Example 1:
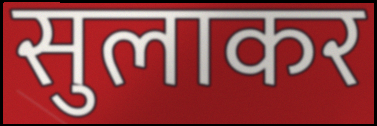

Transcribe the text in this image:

सुलाकर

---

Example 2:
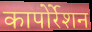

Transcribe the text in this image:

कापोर्रेशन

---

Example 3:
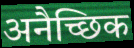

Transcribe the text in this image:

अनैच्छिक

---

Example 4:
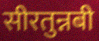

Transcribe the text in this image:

सीरतुन्नबी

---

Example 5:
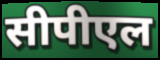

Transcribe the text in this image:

सीपीएल